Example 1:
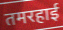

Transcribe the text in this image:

तमरहाई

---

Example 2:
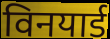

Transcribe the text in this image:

विनयार्ड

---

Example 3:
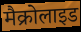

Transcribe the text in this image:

मैक्रोलाइड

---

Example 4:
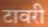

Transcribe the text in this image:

टावरी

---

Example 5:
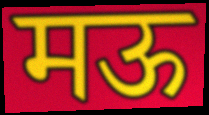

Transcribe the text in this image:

मऊ